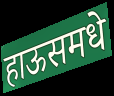
हाऊसमधे